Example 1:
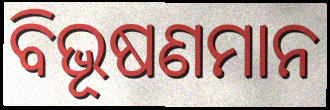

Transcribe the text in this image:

ବିଭୂଷଣମାନ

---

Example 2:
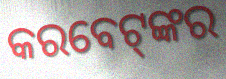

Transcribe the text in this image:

କରବେଟ୍‌ଙ୍କର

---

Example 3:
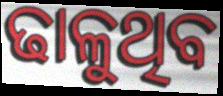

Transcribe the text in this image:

ଢାଳୁଥିବ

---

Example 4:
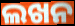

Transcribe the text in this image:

ଲଖନ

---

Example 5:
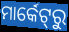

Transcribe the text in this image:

ମାର୍କେଟ୍‌ରୁ